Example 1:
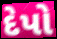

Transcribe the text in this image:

દેપો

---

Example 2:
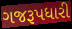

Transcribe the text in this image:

ગજરૂપધારી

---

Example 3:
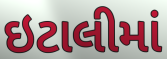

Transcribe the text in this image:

ઇટાલીમાં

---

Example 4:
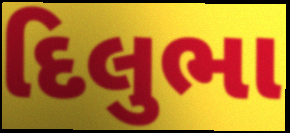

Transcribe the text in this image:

દિલુભા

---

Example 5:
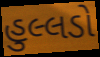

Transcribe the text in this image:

હુલ્લડો